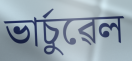
ভাৰ্চুৱেল